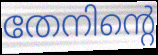
തേനിന്റെ